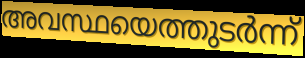
അവസ്ഥയെത്തുടർന്ന്